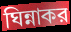
ঘিন্নাকর